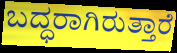
ಬದ್ಧರಾಗಿರುತ್ತಾರೆ